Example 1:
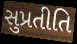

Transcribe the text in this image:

સુપ્રતીતિ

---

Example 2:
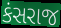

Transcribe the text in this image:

કંસરાજ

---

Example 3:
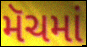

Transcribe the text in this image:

મૅચમાં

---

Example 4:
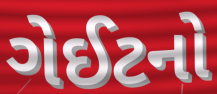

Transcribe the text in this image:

ગેઈટનો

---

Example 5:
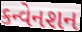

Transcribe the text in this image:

કન્વેનશન